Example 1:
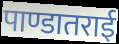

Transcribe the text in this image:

पाण्डातराई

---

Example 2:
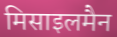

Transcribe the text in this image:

मिसाइलमैन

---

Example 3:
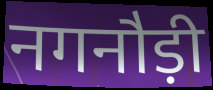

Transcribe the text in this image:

नगनौड़ी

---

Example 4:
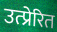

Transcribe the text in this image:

उत्‍प्रेरित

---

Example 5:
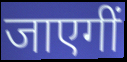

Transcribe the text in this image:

जाएगीं